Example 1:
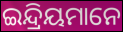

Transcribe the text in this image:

ଇନ୍ଦ୍ରିୟମାନେ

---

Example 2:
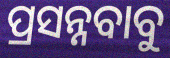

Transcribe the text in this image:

ପ୍ରସନ୍ନବାବୁ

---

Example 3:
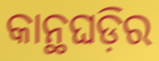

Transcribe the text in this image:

କାନ୍ଥଘଡ଼ିର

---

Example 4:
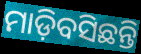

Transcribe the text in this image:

ମାଡ଼ିବସିଛନ୍ତି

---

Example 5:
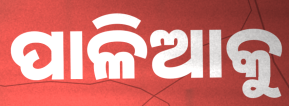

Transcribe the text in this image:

ପାଳିଆକୁ